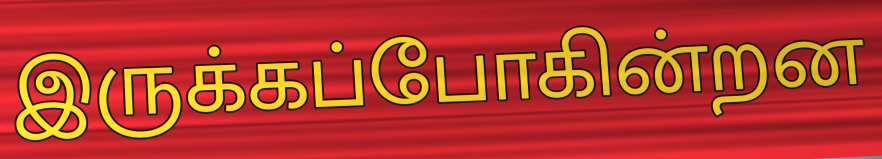
இருக்கப்போகின்றன